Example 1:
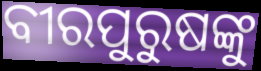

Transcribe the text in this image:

ବୀରପୁରୁଷଙ୍କୁ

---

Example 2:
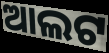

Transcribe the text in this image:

ଆଲଟ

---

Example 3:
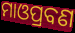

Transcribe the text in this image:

ମାଓପ୍ରବଣ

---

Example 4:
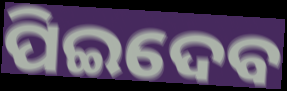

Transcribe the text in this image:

ପିଇଦେବ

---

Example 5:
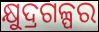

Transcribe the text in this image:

କ୍ଷୁଦ୍ରଗଳ୍ପର